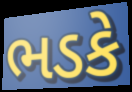
ભડકે